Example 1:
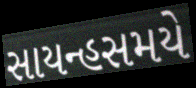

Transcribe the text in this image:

સાયન્હસમયે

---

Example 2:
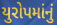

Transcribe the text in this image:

યુરોપમાંનું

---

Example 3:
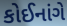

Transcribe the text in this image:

કોઈનાંગે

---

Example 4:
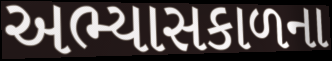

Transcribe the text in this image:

અભ્યાસકાળના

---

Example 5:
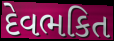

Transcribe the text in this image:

દેવભકિત